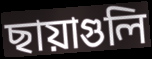
ছায়াগুলি